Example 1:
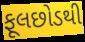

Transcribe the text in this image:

ફૂલછોડથી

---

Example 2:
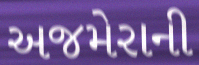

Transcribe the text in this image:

અજમેરાની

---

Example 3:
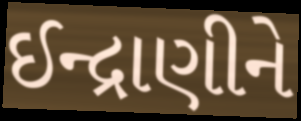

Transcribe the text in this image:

ઈન્દ્રાણીને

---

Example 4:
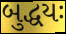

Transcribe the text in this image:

બુદ્ધયઃ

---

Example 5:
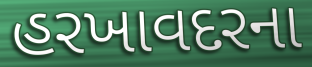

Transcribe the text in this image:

હરખાવદરના